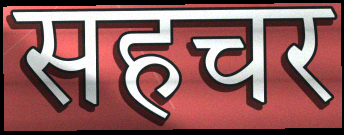
सहचर